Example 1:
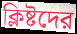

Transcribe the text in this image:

ক্লিষ্টদের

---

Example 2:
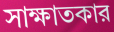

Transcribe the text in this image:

সাক্ষাতকার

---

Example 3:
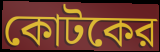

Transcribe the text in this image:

কোটকের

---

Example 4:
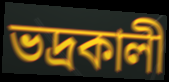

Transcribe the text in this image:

ভদ্রকালী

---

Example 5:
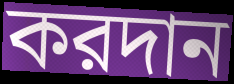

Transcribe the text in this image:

করদান